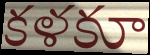
కళకూ